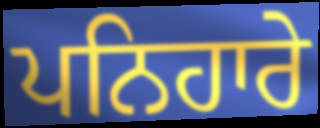
ਪਨਿਹਾਰੇ